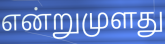
என்றுமுளது